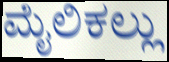
ಮೈಲಿಕಲ್ಲು